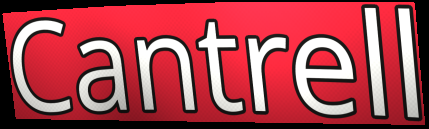
Cantrell